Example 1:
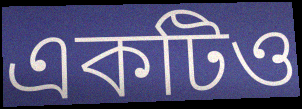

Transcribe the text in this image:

একটিও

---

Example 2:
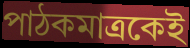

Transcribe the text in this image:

পাঠকমাত্রকেই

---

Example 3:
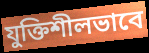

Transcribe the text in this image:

যুক্তিশীলভাবে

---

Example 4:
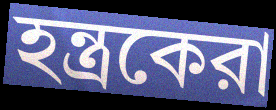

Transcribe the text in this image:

হন্ত্রকেরা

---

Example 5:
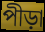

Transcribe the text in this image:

পীড়া